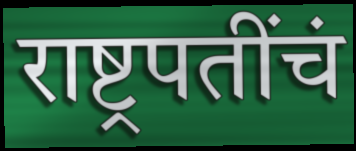
राष्ट्रपतींचं